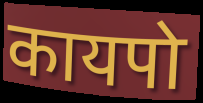
कायपो